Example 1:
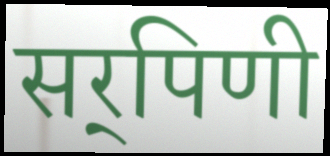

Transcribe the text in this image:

सर्पिणी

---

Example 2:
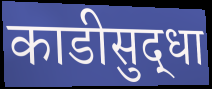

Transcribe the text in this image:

काडीसुद्धा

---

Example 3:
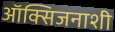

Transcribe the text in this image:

ऑक्सिजनाशी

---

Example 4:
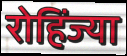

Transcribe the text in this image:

रोहिंज्या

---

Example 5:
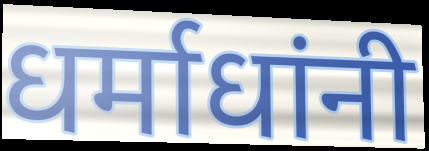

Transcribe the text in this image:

धर्माधांनी